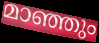
മാഞ്ഞും